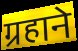
ग्रहाने